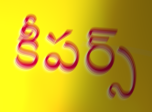
కీపర్స్